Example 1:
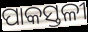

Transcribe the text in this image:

ପାକସ୍ତଳୀ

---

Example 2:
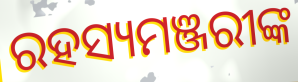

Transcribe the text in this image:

ରହସ୍ୟମଞ୍ଜରୀଙ୍କ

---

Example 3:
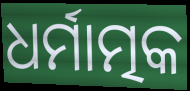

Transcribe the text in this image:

ଧର୍ମାତ୍ମକ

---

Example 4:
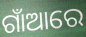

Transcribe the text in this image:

ଗାଁଆରେ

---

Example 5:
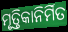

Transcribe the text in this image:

ମୃତ୍ତିକାନିର୍ମିତ